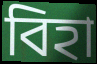
বিহা